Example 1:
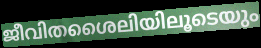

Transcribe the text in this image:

ജീവിതശൈലിയിലൂടെയും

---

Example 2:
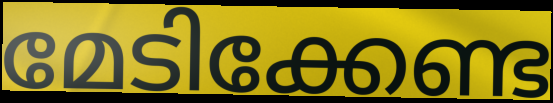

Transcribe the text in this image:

മേടിക്കേണ്ട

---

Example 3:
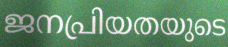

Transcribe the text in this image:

ജനപ്രിയതയുടെ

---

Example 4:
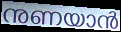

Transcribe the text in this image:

നുണയാൻ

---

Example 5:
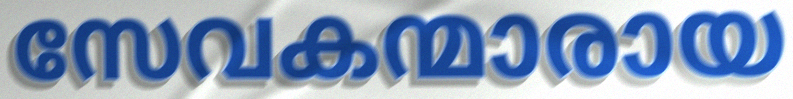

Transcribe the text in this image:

സേവകന്മാരായ